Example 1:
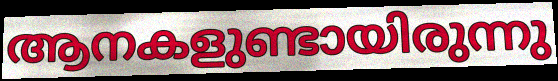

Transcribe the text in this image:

ആനകളുണ്ടായിരുന്നു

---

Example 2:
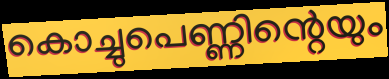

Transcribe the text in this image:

കൊച്ചുപെണ്ണിന്റെയും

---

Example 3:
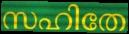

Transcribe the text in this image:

സഹിതേ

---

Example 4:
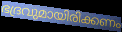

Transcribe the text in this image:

ഭദ്രവുമായിരിക്കണം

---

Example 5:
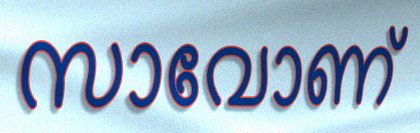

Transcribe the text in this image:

സാവോണ്